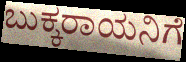
ಬುಕ್ಕರಾಯನಿಗೆ